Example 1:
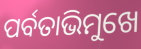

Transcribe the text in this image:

ପର୍ବତାଭିମୁଖେ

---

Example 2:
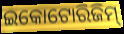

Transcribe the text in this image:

ଇକୋଟୋରିଜିମ୍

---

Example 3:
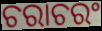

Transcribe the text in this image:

ଚରାଚରଂ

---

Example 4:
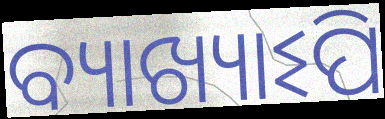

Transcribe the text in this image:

ବ୍ୟାଖ୍ୟାଽପି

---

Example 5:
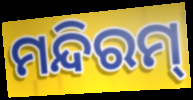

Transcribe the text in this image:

ମନ୍ଦିରମ୍